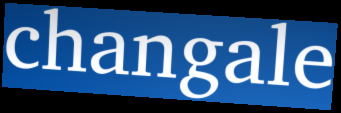
changale